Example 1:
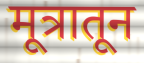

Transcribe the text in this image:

मूत्रातून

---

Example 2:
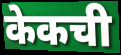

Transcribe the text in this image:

केकची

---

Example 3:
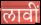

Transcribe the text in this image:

लावीं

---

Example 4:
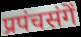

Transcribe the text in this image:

प्रपंचसंगें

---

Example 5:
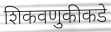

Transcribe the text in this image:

शिकवणुकीकडे